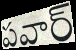
పవార్